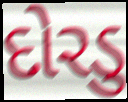
દોરડુ